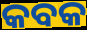
କବକ